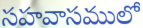
సహవాసములో